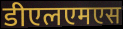
डीएलएमएस